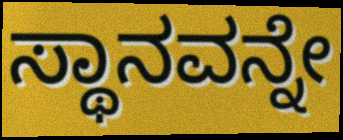
ಸ್ಥಾನವನ್ನೇ